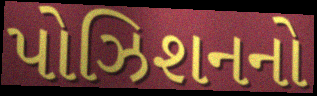
પોઝિશનનો